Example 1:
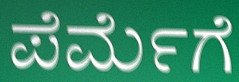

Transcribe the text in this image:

ಪೆರ್ಮೆಗೆ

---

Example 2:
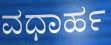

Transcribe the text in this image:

ವಧಾರ್ಹ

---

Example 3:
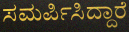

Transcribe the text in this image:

ಸಮರ್ಪಿಸಿದ್ದಾರೆ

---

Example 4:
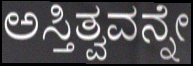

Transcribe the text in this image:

ಅಸ್ತಿತ್ವವನ್ನೇ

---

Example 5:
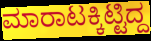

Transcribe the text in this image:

ಮಾರಾಟಕ್ಕಿಟ್ಟಿದ್ದ